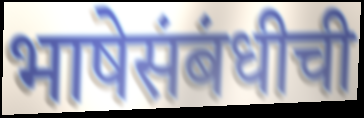
भाषेसंबंधीची